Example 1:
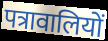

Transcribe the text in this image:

पत्रावालियों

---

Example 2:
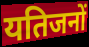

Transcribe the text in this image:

यतिजनों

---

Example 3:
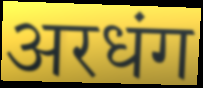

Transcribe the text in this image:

अरधंग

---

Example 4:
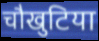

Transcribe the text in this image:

चौखुटिया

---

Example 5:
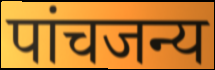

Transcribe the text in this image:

पांचजन्य